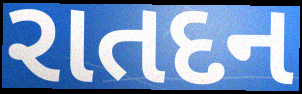
રાતદન